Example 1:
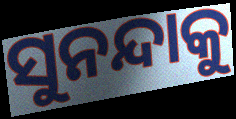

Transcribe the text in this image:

ସୁନନ୍ଦାକୁ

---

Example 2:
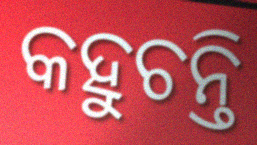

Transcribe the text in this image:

କହୁଚନ୍ତି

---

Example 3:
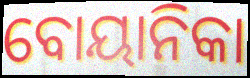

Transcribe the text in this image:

ବୋୟାନିକା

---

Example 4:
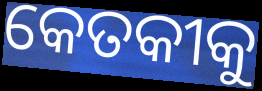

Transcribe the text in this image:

କେତକୀକୁ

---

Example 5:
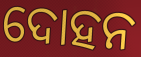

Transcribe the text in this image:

ଦୋହନ